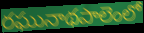
రఘునాథపాలెంలో